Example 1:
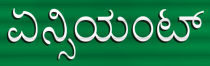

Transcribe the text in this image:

ಏನ್ಸಿಯಂಟ್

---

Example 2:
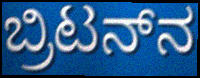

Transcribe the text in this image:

ಬ್ರಿಟನ್‌ನ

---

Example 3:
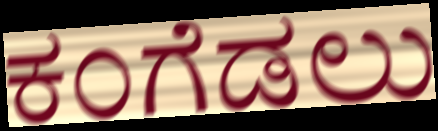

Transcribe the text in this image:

ಕಂಗೆಡಲು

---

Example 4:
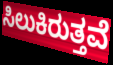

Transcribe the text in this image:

ಸಿಲುಕಿರುತ್ತವೆ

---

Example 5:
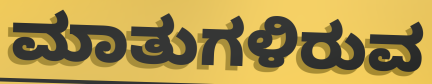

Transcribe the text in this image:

ಮಾತುಗಳಿರುವ